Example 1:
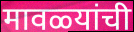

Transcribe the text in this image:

मावळ्यांची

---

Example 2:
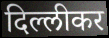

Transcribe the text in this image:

दिल्लीकर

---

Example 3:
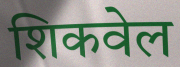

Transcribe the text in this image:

शिकवेल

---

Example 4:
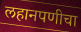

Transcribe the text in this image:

लहानपणीचा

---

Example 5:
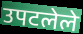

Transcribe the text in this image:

उपटलेले